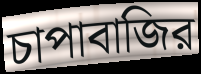
চাপাবাজির